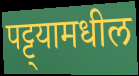
पट्ट्यामधील